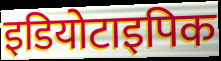
इडियोटाइपिक